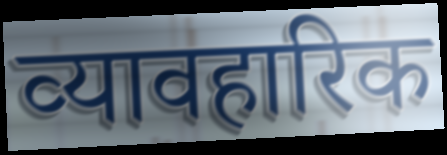
व्‍यावहारिक